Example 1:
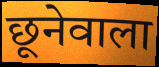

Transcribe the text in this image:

छूनेवाला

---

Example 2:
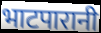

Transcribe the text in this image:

भाटपारानी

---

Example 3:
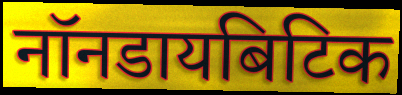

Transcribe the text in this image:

नॉनडायबिटिक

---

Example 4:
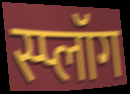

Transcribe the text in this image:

स्प्लॉग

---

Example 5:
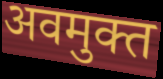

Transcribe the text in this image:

अवमुक्त